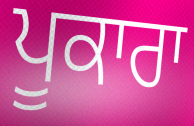
ਪੂਕਾਰਾ